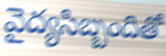
వైద్యసిబ్బందితో